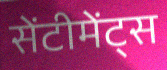
सेंटीमेंट्स